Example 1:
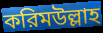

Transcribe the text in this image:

করিমউল্লাহ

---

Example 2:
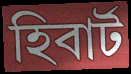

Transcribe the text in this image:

হিবার্ট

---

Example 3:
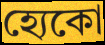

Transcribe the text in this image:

হ্যেকো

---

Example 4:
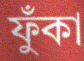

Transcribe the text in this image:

ফুঁকা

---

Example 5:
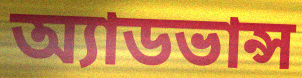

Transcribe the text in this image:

অ্যাডভান্স